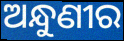
ଅନ୍ଧୁଣୀର